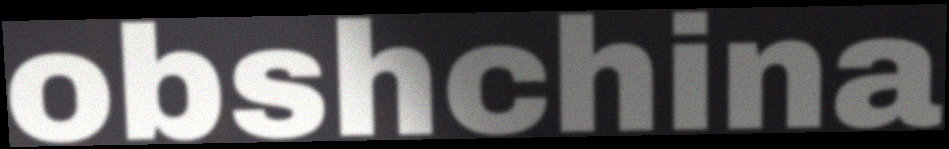
obshchina